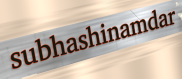
subhashinamdar